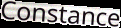
Constance